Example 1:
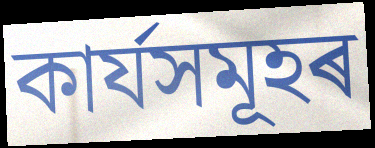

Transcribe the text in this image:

কাৰ্যসমূহৰ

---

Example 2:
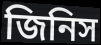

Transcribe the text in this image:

জিনিস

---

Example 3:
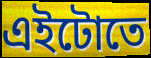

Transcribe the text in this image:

এইটোতে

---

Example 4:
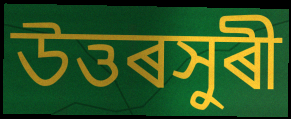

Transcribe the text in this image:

উত্তৰসুৰী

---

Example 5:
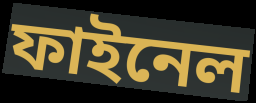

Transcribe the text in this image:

ফাইনেল